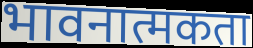
भावनात्मकता